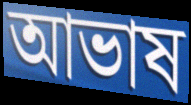
আভাষ